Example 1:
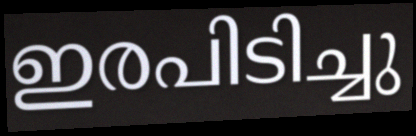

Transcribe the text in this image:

ഇരപിടിച്ചു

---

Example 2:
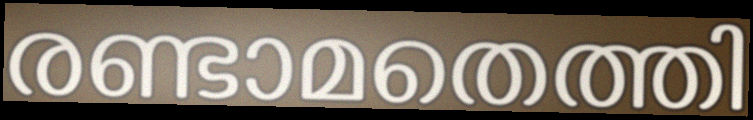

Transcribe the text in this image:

രണ്ടാമതെത്തി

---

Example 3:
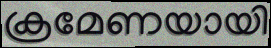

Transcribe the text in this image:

ക്രമേണയായി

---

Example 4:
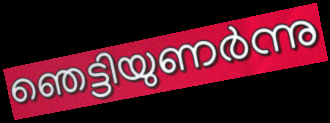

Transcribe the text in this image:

ഞെട്ടിയുണർന്നു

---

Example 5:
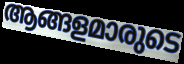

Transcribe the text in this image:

ആങ്ങളമാരുടെ